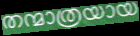
തന്മാത്രയായ